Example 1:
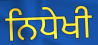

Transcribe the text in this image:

ਨਿਧੇਖੀ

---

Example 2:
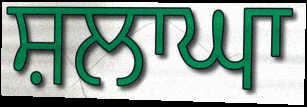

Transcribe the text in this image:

ਸ਼ਲਾਘਾ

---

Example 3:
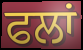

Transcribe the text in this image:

ਫਲਾਂ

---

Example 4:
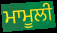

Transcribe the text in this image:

ਮਾਮੂਲੀ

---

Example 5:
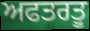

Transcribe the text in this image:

ਅਫਤਰਤੂ